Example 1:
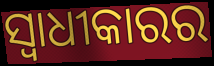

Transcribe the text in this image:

ସ୍ୱାଧୀକାରର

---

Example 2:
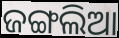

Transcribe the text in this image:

ଜଙ୍ଗଲିଆ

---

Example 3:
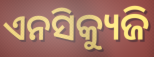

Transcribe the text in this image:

ଏନସିକ୍ୟୁଜି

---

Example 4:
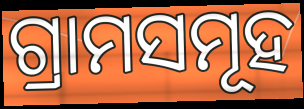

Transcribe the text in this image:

ଗ୍ରାମସମୂହ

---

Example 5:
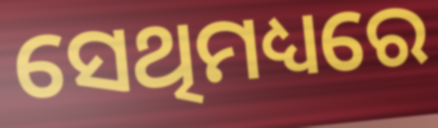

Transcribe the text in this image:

ସେଥିମଧ୍ୟରେ